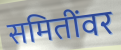
समितींवर